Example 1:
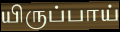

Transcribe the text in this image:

யிருப்பாய்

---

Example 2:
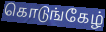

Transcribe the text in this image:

கொடுங்கேழ்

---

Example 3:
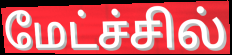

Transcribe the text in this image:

மேட்ச்சில்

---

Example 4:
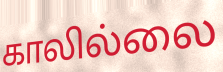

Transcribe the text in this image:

காலில்லை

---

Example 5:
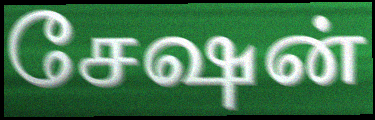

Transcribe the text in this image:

சேஷன்